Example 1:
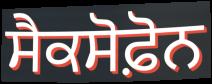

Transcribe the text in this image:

ਸੈਕਸੋਫ਼ੋਨ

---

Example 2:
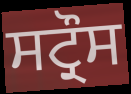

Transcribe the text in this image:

ਸਟ੍ਰੌਸ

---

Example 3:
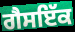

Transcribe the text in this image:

ਗੈਸਇੱਕ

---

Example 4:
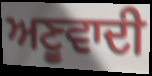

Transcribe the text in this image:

ਅਣੂਵਾਦੀ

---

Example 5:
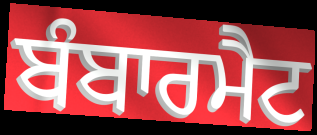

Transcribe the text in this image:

ਬੰਬਾਰਮੈਟ